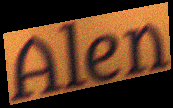
Alen